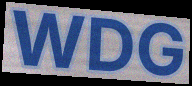
WDG